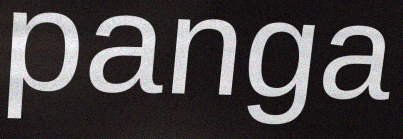
panga